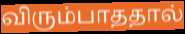
விரும்பாததால்